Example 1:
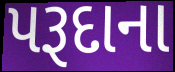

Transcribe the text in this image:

પરૂદાના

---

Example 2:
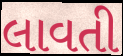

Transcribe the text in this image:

લાવતી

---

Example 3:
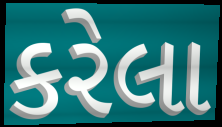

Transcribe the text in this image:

કરેલા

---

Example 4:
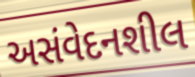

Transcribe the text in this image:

અસંવેદનશીલ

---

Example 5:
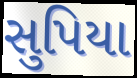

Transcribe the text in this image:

સુપિયા